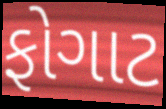
ફોગાટ